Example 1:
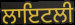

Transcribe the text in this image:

ਲਾਇਟਲੀ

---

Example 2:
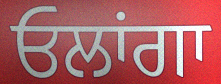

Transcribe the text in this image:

ਓਲਾਂਗਾ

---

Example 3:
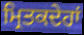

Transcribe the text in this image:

ਮ੍ਰਿਤਕਦੇਹਾਂ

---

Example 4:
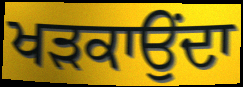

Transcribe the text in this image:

ਖੜਕਾਉਂਦਾ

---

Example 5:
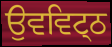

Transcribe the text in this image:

ਉਵਵਿਟ੍ਠ